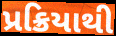
પ્રક્રિયાથી